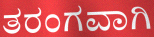
ತರಂಗವಾಗಿ